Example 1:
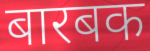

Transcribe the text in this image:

बारबक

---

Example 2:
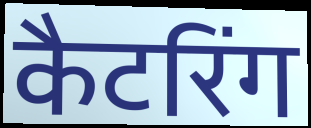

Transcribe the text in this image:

कैटरिंग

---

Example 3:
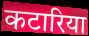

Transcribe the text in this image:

कटारिया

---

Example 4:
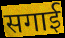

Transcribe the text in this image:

सगाई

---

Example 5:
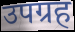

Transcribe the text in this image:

उपग्रह